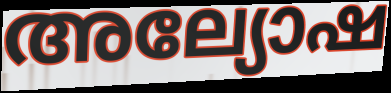
അല്യോഷ